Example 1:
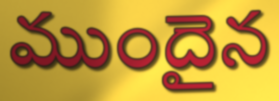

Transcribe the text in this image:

ముందైన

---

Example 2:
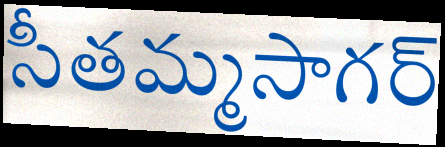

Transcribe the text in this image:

సీతమ్మసాగర్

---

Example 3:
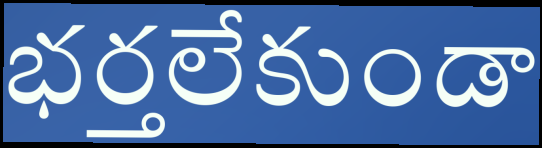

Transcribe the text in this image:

భర్తలేకుండా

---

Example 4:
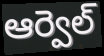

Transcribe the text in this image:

ఆర్వెల్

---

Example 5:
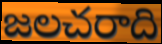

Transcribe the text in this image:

జలచరాది